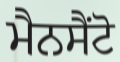
ਮੈਨਸੈਂਟੋ